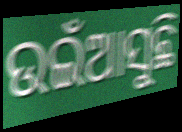
ଉଇଁଆସୁଛି